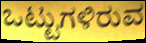
ಒಟ್ಟುಗಳಿರುವ